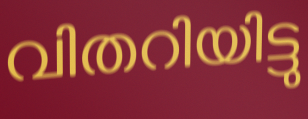
വിതറിയിട്ടു